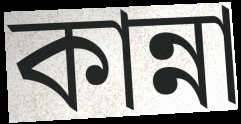
কান্না